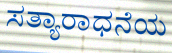
ಸತ್ಯಾರಾಧನೆಯ